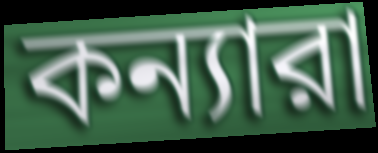
কন্যারা